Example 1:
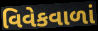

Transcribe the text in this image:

વિવેકવાળાં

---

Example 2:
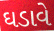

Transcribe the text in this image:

ઘડાવે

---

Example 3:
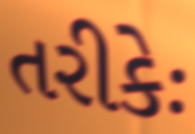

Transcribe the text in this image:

તરીકેઃ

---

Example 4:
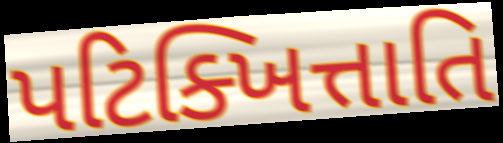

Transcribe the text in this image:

પટિક્ખિત્તાતિ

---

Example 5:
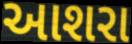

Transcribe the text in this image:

આશરા